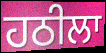
ਹਠੀਲਾ